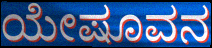
ಯೇಷೂವನ